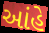
આંહે